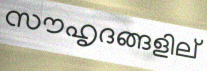
സൗഹൃദങ്ങളില്